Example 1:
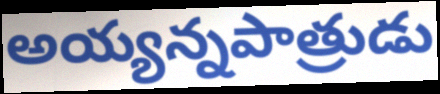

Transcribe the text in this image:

అయ్యన్నపాత్రుడు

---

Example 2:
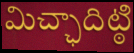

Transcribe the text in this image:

మిచ్ఛాదిట్ఠి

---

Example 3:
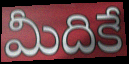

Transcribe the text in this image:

మీదికే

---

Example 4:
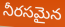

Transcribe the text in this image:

నీరసమైన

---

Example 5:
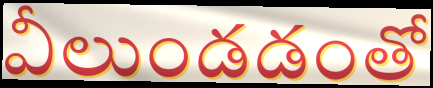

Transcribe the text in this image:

వీలుండడంతో